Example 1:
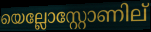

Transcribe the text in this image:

യെല്ലോസ്റ്റോണില്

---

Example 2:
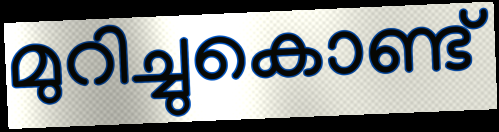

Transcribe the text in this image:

മുറിച്ചുകൊണ്ട്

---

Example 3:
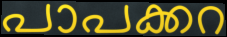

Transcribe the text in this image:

പാപക്കറ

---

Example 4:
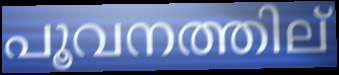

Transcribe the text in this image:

പൂവനത്തില്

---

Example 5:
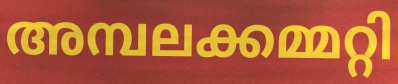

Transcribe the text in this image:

അമ്പലക്കമ്മറ്റി